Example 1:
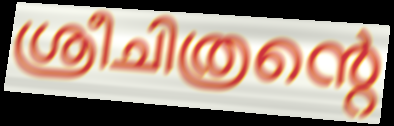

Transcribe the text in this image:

ശ്രീചിത്രന്റെ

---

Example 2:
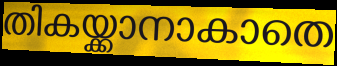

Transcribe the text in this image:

തികയ്ക്കാനാകാതെ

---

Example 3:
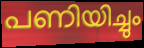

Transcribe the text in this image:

പണിയിച്ചും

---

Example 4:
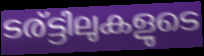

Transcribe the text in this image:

ടര്ട്ടിലുകളുടെ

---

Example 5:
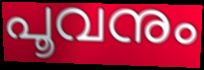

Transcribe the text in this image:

പൂവനും